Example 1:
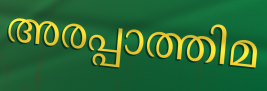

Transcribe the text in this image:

അരപ്പാത്തിമ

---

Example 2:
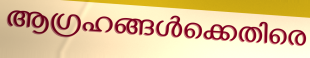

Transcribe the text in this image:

ആഗ്രഹങ്ങൾക്കെതിരെ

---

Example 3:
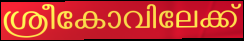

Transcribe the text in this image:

ശ്രീകോവിലേക്ക്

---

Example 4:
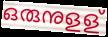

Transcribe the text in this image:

ഒരുനുളള്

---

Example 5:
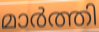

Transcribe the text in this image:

മാർത്തി